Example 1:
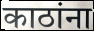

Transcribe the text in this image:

काठांना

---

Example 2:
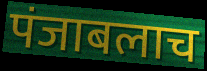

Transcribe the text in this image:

पंजाबलाच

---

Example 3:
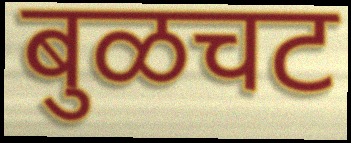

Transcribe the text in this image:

बुळचट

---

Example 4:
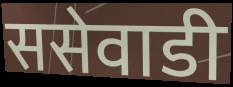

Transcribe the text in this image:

ससेवाडी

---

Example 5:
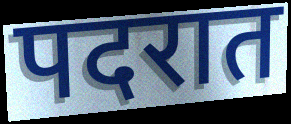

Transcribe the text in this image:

पदरात